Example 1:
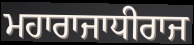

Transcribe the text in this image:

ਮਹਾਰਾਜਾਧੀਰਾਜ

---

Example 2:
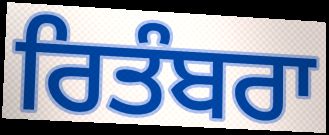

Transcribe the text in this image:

ਰਿਤੰਬਰਾ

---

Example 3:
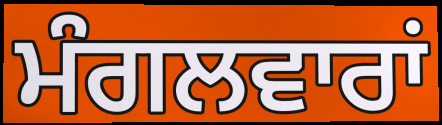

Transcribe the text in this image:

ਮੰਗਲਵਾਰਾਂ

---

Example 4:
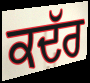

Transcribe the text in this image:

ਕਦੱਰ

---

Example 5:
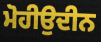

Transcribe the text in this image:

ਮੋਹੀਉਦੀਨ